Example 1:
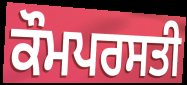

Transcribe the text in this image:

ਕੌਮਪਰਸਤੀ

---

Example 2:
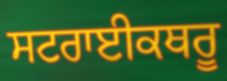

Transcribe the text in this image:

ਸਟਰਾਈਕਥਰੂ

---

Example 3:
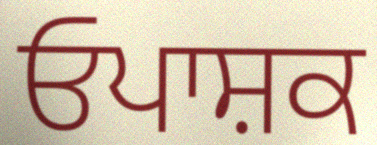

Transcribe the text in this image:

ਓਪਾਸ਼ਕ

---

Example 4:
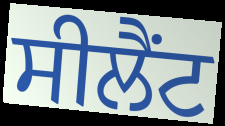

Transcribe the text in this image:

ਸੀਲੈਂਟ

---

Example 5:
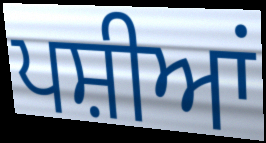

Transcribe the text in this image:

ਪਸ਼ੀਆਂ